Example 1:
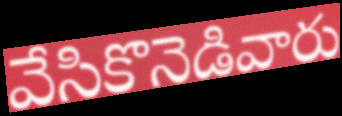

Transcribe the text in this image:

వేసికొనెడివారు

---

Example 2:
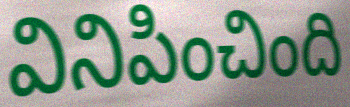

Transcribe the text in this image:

వినిపించింది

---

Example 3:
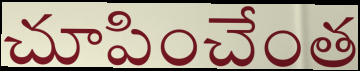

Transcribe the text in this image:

చూపించేంత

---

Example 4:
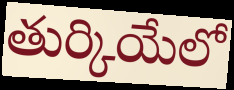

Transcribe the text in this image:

తుర్కియేలో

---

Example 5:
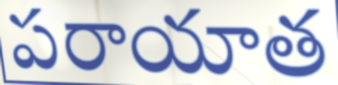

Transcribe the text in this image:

పరాయాత